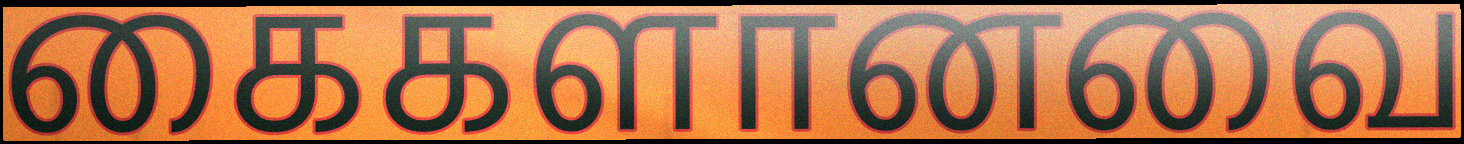
கைகளானவை